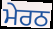
ਮੇਰਠ